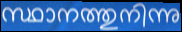
സ്ഥാനത്തുനിന്നു